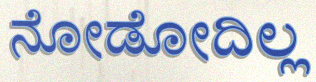
ನೋಡೋದಿಲ್ಲ